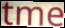
tme